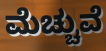
ಮೆಚ್ಚುವೆ